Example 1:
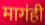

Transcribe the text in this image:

मागंही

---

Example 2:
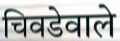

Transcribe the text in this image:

चिवडेवाले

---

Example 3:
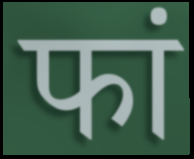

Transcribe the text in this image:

फां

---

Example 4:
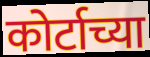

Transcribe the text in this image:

कोर्टाच्या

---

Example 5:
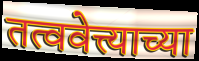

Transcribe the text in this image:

तत्ववेत्त्याच्या